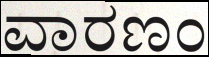
ವಾರಣಂ